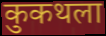
कुकथला